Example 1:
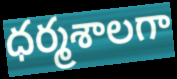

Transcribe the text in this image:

ధర్మశాలగా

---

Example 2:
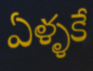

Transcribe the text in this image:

ఏళ్ళకే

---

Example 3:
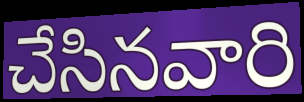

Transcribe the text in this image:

చేసినవారి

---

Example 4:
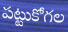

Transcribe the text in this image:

పట్టుకోగల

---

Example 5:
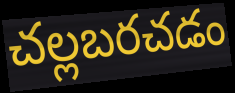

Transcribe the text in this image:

చల్లబరచడం